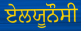
ਏਲਯੂਨੌਸੀ